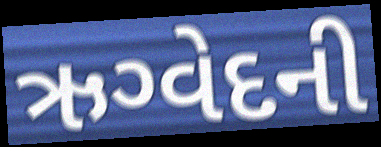
ઋગ્વેદની